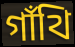
গাঁথি